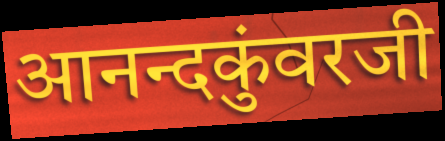
आनन्दकुंवरजी